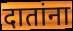
दातांना